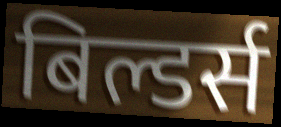
बिल्डर्स